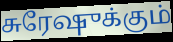
சுரேஷுக்கும்